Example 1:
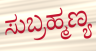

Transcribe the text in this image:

ಸುಬ್ರಹ್ಮಣ್ಯ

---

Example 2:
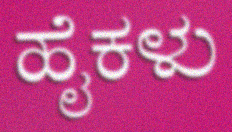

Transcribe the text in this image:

ಹೈಕಳು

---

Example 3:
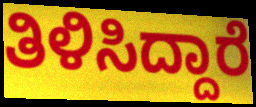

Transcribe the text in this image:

ತಿಳಿಸಿದ್ದಾರೆ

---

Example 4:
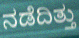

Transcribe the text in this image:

ನಡೆದಿತ್ತು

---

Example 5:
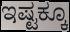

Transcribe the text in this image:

ಇಷ್ಟಕ್ಕೂ